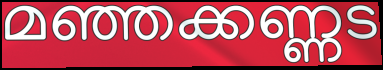
മഞ്ഞക്കണ്ണട